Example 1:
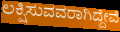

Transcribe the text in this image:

ಲಕ್ಷಿಸುವವರಾಗಿದ್ದೇವೆ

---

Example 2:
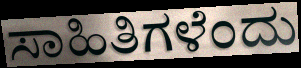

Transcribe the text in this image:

ಸಾಹಿತಿಗಳೆಂದು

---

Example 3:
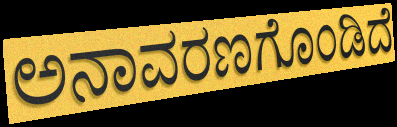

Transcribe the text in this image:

ಅನಾವರಣಗೊಂಡಿದೆ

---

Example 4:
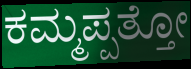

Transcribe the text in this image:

ಕಮ್ಮಪ್ಪತ್ತೋ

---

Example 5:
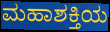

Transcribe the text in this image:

ಮಹಾಶಕ್ತಿಯ